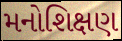
મનોશિક્ષણ